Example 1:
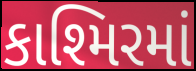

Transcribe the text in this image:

કાશ્મિરમાં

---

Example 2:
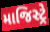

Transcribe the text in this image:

માજિસ્ટ્રે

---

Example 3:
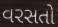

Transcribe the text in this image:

વરસતો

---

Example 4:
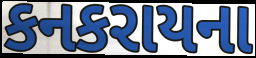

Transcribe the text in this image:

કનકરાયના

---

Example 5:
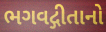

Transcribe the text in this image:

ભગવદ્ગીતાનો